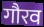
गौरव